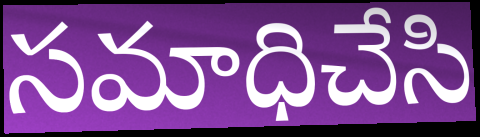
సమాధిచేసి